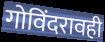
गोविंदरावही